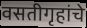
वसतीगृहांचे